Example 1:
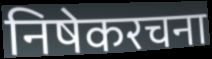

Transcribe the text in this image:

निषेकरचना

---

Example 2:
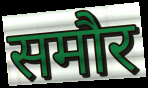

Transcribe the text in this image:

समौर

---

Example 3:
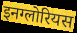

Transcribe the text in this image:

इनग्लोरियस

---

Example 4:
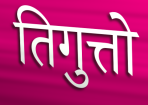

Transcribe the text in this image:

तिगुत्तो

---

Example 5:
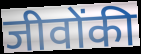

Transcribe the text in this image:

जीवोंकी